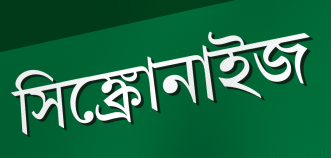
সিঙ্ক্রোনাইজ